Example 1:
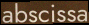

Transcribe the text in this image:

abscissa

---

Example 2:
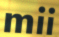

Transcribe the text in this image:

mii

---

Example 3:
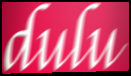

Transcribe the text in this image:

dulu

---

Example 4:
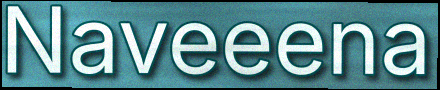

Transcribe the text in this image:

Naveeena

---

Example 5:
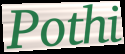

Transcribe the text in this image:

Pothi